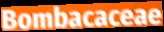
Bombacaceae